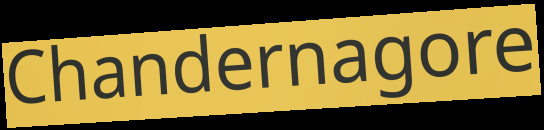
Chandernagore